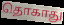
தொகாது